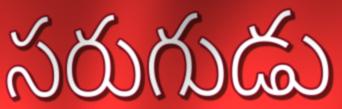
సరుగుడు